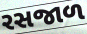
રસજાળ